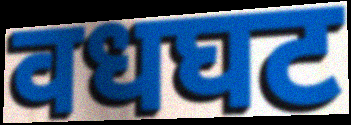
वधघट